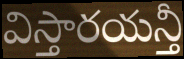
విస్తారయన్తీ